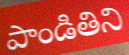
పాండితిని